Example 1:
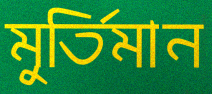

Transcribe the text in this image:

মুর্তিমান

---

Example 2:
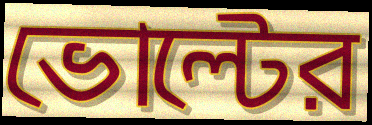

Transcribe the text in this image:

ভোল্টের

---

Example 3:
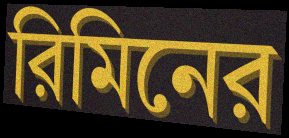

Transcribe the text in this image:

রিমিনের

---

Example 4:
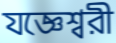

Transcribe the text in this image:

যজ্ঞেশ্বরী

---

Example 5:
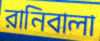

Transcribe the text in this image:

রানিবালা